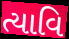
ત્યાવિ